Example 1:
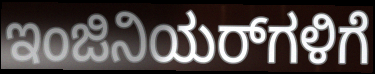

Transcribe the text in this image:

ಇಂಜಿನಿಯರ್‌ಗಳಿಗೆ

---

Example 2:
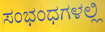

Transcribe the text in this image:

ಸಂಭಂಧಗಳಲ್ಲಿ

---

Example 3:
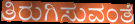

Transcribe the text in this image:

ತಿರುಗಿಸುವಂತೆ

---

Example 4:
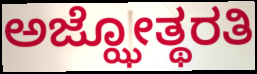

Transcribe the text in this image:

ಅಜ್ಝೋತ್ಥರತಿ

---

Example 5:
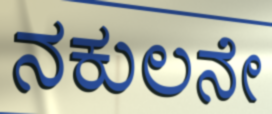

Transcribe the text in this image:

ನಕುಲನೇ